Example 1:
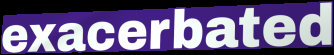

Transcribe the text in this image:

exacerbated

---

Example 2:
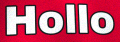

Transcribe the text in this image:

Hollo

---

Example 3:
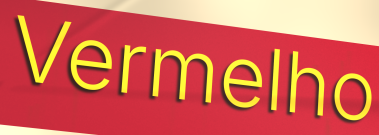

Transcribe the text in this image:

Vermelho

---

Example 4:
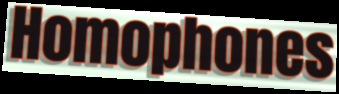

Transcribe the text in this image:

Homophones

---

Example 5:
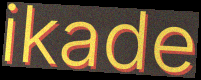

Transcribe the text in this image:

ikade